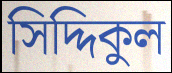
সিদ্দিকুল